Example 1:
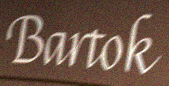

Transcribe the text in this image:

Bartok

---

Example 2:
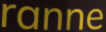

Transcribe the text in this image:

ranne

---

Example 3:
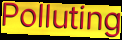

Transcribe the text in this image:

Polluting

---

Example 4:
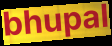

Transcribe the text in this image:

bhupal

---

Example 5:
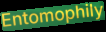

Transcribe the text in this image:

Entomophily